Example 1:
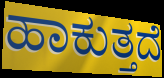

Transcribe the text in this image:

ಹಾಕುತ್ತದೆ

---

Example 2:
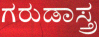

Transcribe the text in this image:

ಗರುಡಾಸ್ತ್ರ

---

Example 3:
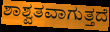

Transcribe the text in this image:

ಶಾಶ್ವತವಾಗುತ್ತದೆ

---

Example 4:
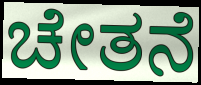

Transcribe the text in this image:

ಚೇತನೆ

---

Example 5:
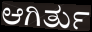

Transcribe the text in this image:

ಆಗಿರ್ತು